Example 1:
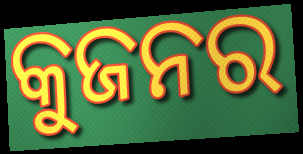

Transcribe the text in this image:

କୁଜନର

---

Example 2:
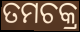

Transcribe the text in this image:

ତମଚକ୍ର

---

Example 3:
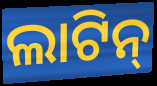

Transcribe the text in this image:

ଲାଟିନ୍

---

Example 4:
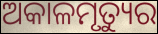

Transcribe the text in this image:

ଅକାଳମୃତ୍ୟୁର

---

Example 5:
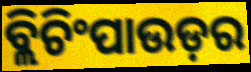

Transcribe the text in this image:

ବ୍ଲିଚିଂପାଉଡ଼ର